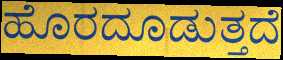
ಹೊರದೂಡುತ್ತದೆ